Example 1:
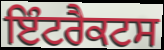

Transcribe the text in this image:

ਇੰਟਰੈਕਟਸ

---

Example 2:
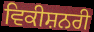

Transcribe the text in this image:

ਵਿਕੀਸ਼ਨਰੀ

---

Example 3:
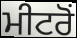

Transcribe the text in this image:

ਮੀਟਰੋਂ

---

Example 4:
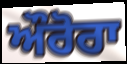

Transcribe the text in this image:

ਔਰੋਰਾ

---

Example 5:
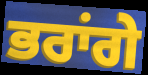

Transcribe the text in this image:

ਭਰਾਂਗੇ